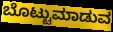
ಬೊಟ್ಟುಮಾಡುವ